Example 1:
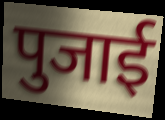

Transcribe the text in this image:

पुजाई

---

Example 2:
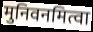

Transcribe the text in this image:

मुनिवनमित्वा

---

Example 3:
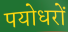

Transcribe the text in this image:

पयोधरों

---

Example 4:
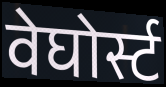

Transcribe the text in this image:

वेघोर्स्ट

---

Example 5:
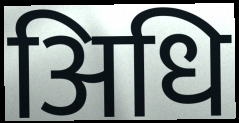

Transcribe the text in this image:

अिधि